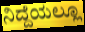
ನಿದ್ದೆಯಲ್ಲೂ